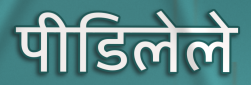
पीडिलेले